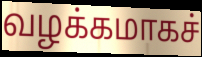
வழக்கமாகச்